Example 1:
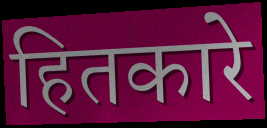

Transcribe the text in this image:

हितकारे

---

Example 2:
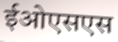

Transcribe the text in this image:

ईओएसएस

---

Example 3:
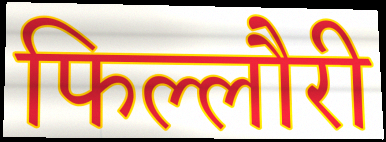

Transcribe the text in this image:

फिल्लौरी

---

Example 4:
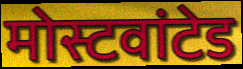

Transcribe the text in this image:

मोस्टवांटेड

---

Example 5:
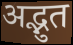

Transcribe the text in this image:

अद्भुत